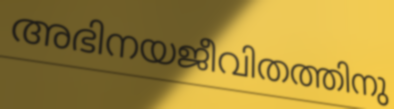
അഭിനയജീവിതത്തിനു